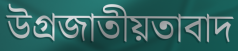
উগ্রজাতীয়তাবাদ